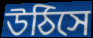
উঠিসে